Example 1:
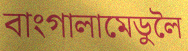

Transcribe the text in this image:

বাংগালামেডুলৈ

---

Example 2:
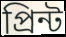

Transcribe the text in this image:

প্ৰিন্ট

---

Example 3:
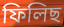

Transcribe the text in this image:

ফিলিছ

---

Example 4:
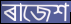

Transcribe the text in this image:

ৰাজেশ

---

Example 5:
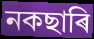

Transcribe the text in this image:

নকছাৰি